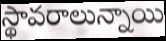
స్థావరాలున్నాయి